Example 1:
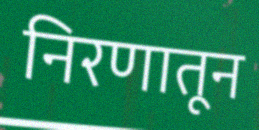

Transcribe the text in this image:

निरणातून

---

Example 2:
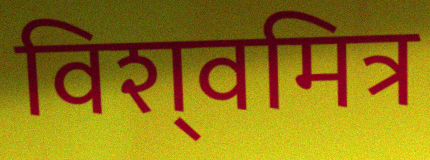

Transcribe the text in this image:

विश्वमित्र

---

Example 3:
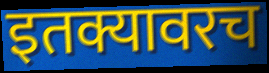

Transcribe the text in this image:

इतक्यावरच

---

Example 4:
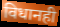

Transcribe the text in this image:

विधानही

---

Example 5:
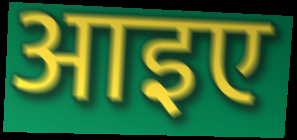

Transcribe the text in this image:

आइए